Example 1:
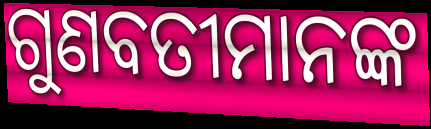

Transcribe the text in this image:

ଗୁଣବତୀମାନଙ୍କ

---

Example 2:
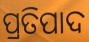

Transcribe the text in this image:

ପ୍ରତିପାଦ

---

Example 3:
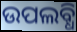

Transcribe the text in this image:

ଉପଲବ୍ଧି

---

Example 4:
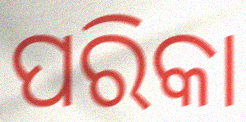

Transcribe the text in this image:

ପରିକା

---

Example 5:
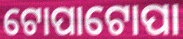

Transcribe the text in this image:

ଟୋପାଟୋପା